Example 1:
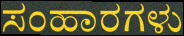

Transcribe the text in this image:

ಸಂಹಾರಗಳು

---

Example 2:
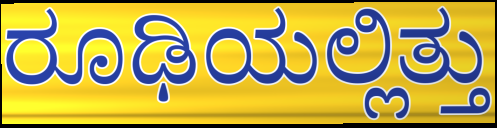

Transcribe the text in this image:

ರೂಢಿಯಲ್ಲಿತ್ತು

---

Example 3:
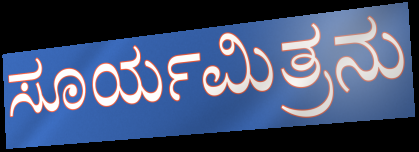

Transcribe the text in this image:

ಸೂರ್ಯಮಿತ್ರನು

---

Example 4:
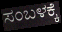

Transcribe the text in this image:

ಸಂಬಳಕ್ಕೆ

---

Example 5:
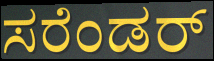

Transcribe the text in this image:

ಸರೆಂಡರ್